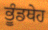
ਭੂੰਡਥੇਹ